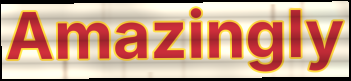
Amazingly